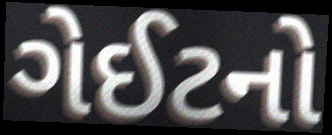
ગેઈટનો